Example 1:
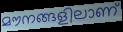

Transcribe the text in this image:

മൗനങ്ങളിലാണ്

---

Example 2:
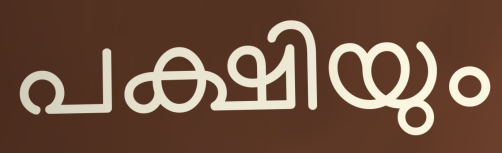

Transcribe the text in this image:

പക്ഷിയും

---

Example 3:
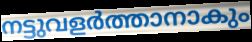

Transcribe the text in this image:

നട്ടുവളർത്താനാകും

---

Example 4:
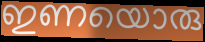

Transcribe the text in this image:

ഇണയൊരു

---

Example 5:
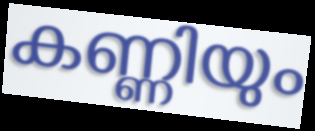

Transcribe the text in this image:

കണ്ണിയും